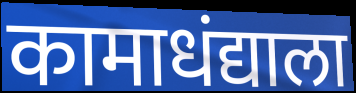
कामाधंद्याला